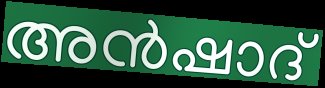
അൻഷാദ്